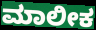
ಮಾಲೀಕ